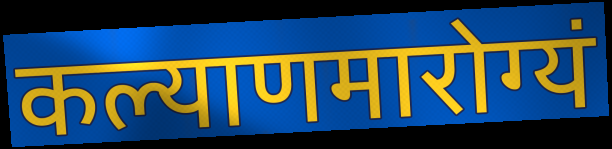
कल्याणमारोग्यं